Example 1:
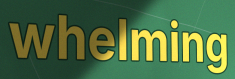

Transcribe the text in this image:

whelming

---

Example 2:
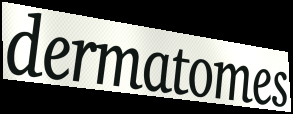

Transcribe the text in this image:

dermatomes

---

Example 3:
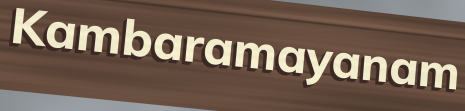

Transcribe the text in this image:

Kambaramayanam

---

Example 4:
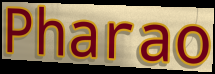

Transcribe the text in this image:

Pharao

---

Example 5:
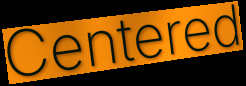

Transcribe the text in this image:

Centered